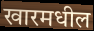
खारमधील